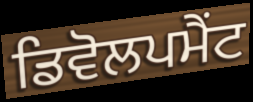
ਡਿਵੋਲਪਮੈਂਟ